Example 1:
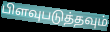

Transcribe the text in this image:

பிளவுபடுத்தவும்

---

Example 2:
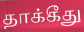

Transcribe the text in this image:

தாக்கீது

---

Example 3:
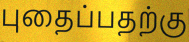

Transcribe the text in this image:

புதைப்பதற்கு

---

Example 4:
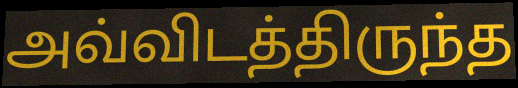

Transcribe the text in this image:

அவ்விடத்திருந்த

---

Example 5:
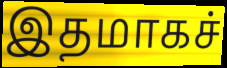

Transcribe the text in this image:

இதமாகச்